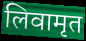
लिवामृत